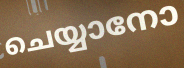
ചെയ്യാനോ